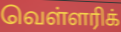
வெள்ளரிக்